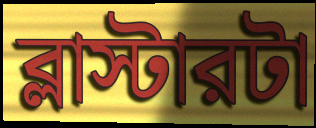
ব্লাস্টারটা